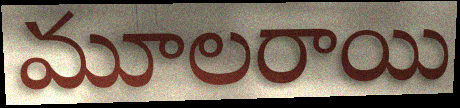
మూలరాయి